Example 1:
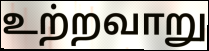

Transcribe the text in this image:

உற்றவாறு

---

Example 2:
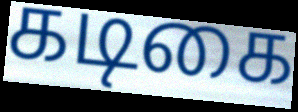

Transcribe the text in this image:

கடிகை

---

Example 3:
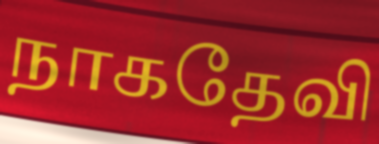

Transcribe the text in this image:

நாகதேவி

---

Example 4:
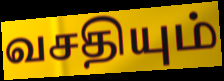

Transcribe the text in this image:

வசதியும்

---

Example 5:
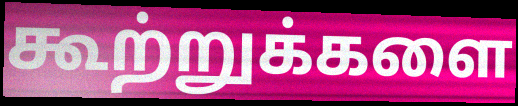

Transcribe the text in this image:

கூற்றுக்களை